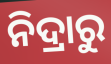
ନିଦ୍ରାରୁ